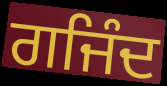
ਗਜਿੰਦ